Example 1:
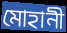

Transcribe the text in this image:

মোহানী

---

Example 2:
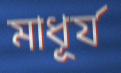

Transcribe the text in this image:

মাধূর্য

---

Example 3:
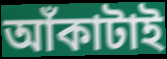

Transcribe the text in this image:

আঁকাটাই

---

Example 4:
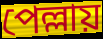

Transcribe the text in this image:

পেল্লায়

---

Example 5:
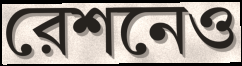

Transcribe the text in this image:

রেশনেও